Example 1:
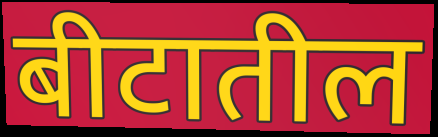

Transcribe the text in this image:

बीटातील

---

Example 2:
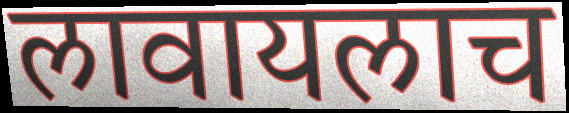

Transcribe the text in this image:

लावायलाच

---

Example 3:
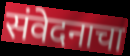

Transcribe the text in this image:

संवेदनाचा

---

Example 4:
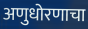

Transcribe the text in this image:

अणुधोरणाचा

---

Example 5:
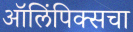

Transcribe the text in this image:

ऑलिंपिक्सचा